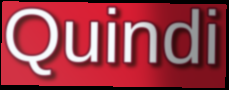
Quindi